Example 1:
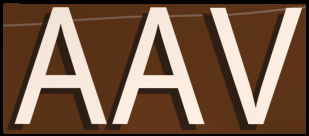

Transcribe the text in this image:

AAV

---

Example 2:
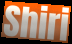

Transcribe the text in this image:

Shiri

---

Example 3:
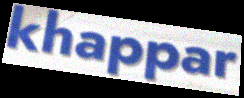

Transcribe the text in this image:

khappar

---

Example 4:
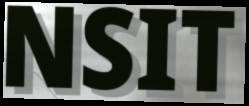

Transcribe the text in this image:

NSIT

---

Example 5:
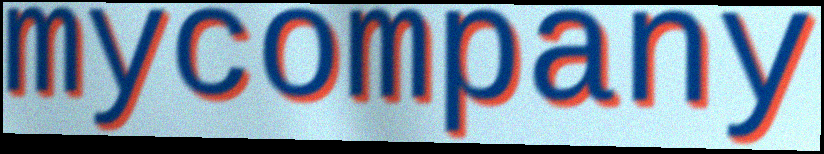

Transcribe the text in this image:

mycompany